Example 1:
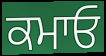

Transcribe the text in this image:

ਕਮਾਓ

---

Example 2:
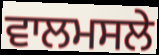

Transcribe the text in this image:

ਵਾਲਮਸਲੇ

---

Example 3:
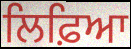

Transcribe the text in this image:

ਲਿਫ਼ਿਆ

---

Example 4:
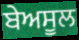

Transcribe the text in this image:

ਬੇਅਸੂਲ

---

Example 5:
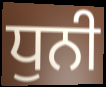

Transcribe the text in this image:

ਧੁਨੀ